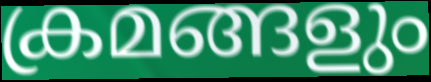
ക്രമങ്ങളും